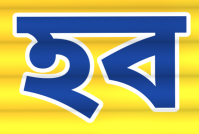
হব